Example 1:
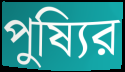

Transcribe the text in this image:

পুষ্যির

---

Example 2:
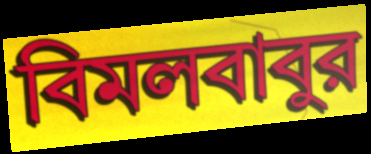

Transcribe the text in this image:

বিমলবাবুর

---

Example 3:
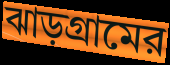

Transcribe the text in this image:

ঝাড়গ্রামের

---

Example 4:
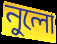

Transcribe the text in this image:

নুলো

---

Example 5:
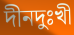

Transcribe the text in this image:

দীনদুঃখী